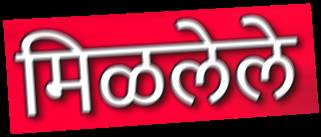
मिळलेले